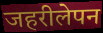
जहरीलेपन